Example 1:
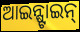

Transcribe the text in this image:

ଆଇନ୍ଷ୍ଟାଇନ୍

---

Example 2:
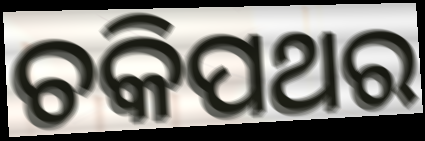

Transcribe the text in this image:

ଚକିପଥର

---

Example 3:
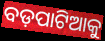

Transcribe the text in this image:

ବଡ଼ପାଟିଆକୁ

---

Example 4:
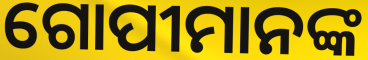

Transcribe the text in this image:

ଗୋପୀମାନଙ୍କ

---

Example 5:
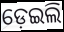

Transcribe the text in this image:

ଡ଼େଇଲି